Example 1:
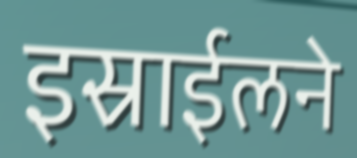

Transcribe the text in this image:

इस्राईलने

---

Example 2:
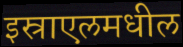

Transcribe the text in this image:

इस्राएलमधील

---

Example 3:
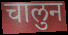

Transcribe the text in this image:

चालुन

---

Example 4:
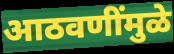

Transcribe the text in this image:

आठवणींमुळे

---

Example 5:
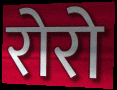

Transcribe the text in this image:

रोरो